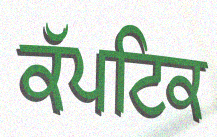
ਕੱਪਟਿਕ